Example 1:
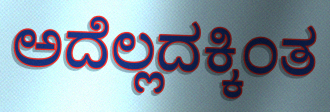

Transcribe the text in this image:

ಅದೆಲ್ಲದಕ್ಕಿಂತ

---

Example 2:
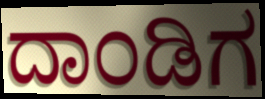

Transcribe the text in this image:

ದಾಂಡಿಗ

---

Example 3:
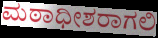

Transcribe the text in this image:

ಮಠಾಧೀಶರಾಗಲಿ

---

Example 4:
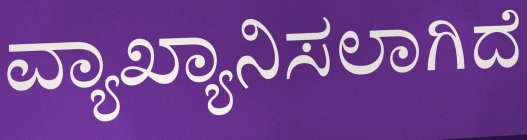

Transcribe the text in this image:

ವ್ಯಾಖ್ಯಾನಿಸಲಾಗಿದೆ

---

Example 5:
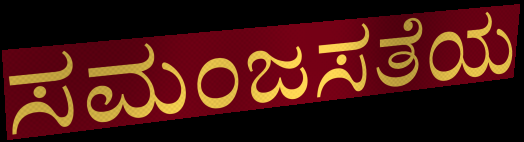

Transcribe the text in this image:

ಸಮಂಜಸತೆಯ